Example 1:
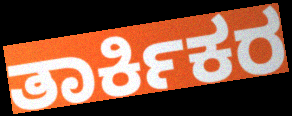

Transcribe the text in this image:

ತಾರ್ಕಿಕರ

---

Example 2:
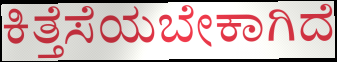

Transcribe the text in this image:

ಕಿತ್ತೆಸೆಯಬೇಕಾಗಿದೆ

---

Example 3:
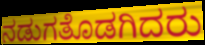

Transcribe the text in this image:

ನಡುಗತೊಡಗಿದರು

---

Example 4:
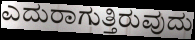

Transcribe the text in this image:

ಎದುರಾಗುತ್ತಿರುವುದು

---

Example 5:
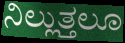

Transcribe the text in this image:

ನಿಲ್ಲುತ್ತಲೂ